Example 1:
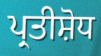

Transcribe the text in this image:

ਪ੍ਰਤੀਸ਼ੋਧ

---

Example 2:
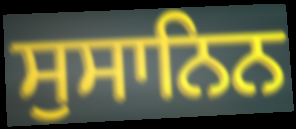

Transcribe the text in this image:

ਸੁਸਾਨਿਨ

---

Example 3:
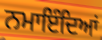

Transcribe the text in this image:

ਨਮਾਇੰਦਿਆਂ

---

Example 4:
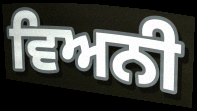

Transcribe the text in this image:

ਵਿਅਨੀ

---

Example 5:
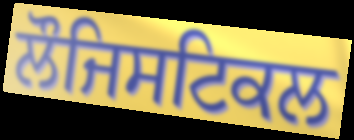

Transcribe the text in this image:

ਲੌਜਿਸਟਿਕਲ